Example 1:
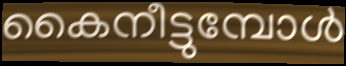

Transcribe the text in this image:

കൈനീട്ടുമ്പോൾ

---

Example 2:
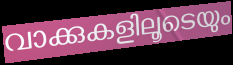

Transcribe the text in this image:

വാക്കുകളിലൂടെയും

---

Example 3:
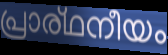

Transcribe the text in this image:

പ്രാര്ഥനീയം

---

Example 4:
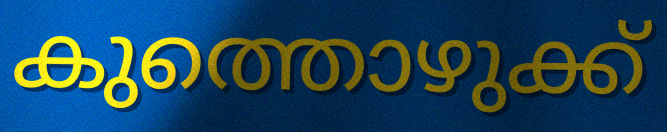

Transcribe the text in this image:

കുത്തൊഴുക്ക്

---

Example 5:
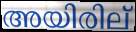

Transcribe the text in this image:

അയിരില്